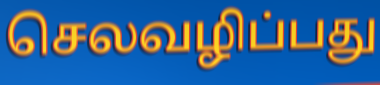
செலவழிப்பது